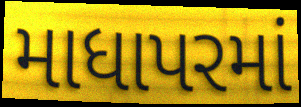
માધાપરમાં